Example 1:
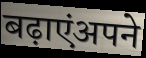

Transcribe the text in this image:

बढ़ाएंअपने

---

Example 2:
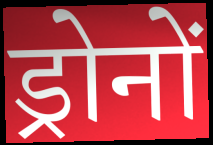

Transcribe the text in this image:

ड्रोनों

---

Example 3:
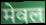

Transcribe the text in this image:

मेवल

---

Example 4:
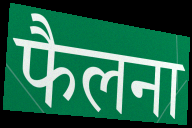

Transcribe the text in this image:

फैलना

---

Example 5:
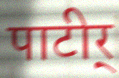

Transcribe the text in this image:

पाटीर्